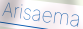
Arisaema